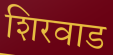
शिरवाड